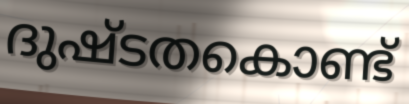
ദുഷ്ടതകൊണ്ട്